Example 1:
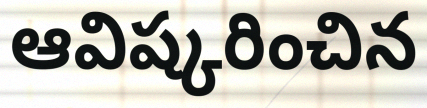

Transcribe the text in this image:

ఆవిష్కరించిన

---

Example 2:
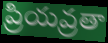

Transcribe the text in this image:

ప్రియవ్రతా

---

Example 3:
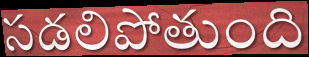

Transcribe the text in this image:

సడలిపోతుంది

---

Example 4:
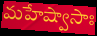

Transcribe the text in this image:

మహేష్వాసాః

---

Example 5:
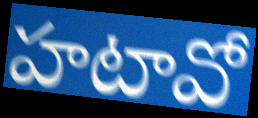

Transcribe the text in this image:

హటావో